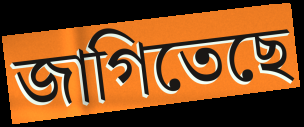
জাগিতেছে